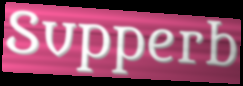
Supperb